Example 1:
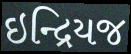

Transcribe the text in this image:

ઇન્દ્રિયજ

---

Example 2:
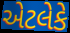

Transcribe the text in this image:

એટલેકે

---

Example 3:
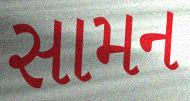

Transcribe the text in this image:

સામન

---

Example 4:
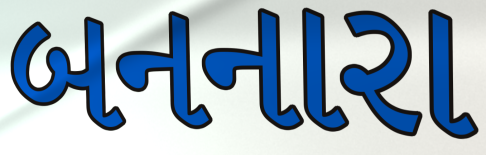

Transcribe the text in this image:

બનનારા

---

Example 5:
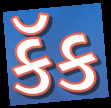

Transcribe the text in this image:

કૅક